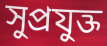
সুপ্রযুক্ত